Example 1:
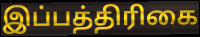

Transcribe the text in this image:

இப்பத்திரிகை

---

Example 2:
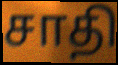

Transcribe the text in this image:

சாதி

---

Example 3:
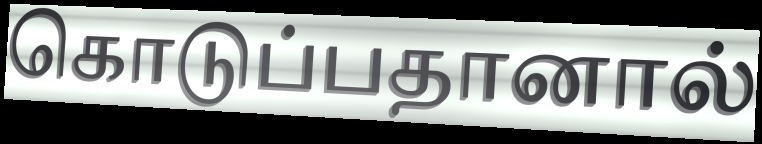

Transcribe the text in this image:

கொடுப்பதானால்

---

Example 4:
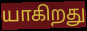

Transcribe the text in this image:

யாகிறது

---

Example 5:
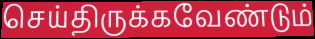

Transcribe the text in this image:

செய்திருக்கவேண்டும்